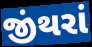
જીંથરાં